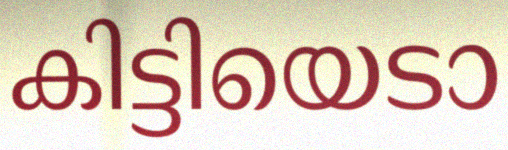
കിട്ടിയെടാ